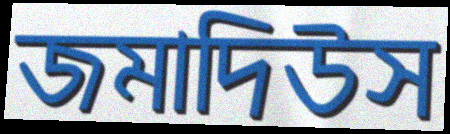
জমাদিউস